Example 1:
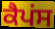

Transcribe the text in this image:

ਕੈਪਂਸ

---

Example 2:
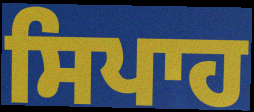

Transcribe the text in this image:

ਸਿਪਾਹ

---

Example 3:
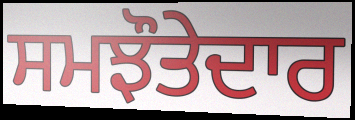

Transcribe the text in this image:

ਸਮਝੌਤੇਦਾਰ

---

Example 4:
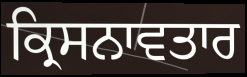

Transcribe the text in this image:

ਕ੍ਰਿਸਨਾਵਤਾਰ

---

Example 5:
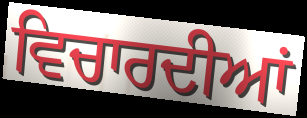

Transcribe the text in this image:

ਵਿਚਾਰਦੀਆਂ